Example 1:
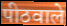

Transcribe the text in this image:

पीठवाले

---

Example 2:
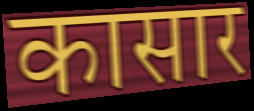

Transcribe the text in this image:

कासार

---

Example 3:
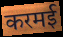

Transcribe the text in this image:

करमई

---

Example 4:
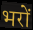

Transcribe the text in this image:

भरों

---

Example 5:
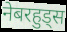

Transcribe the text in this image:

नेबरहुड्स